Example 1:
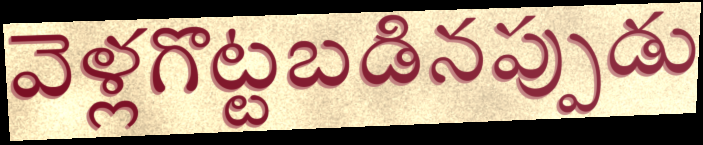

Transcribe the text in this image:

వెళ్లగొట్టబడినప్పుడు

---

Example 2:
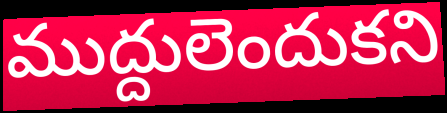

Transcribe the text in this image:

ముద్దులెందుకని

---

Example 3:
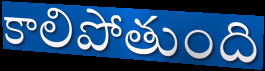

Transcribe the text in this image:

కాలిపోతుంది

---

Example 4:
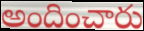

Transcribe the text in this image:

అందించారు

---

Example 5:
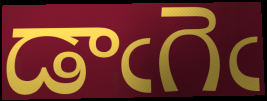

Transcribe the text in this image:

డాఁగెఁ